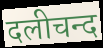
दलीचन्द